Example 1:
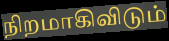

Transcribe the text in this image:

நிறமாகிவிடும்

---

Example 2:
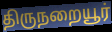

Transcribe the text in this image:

திருநறையூர்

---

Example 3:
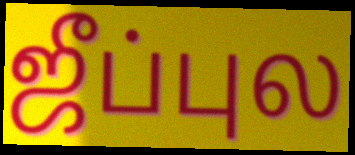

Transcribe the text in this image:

ஜீப்புல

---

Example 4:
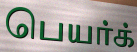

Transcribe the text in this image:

பெயர்க்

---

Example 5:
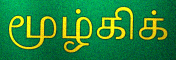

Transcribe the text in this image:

மூழ்கிக்